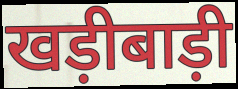
खड़ीबाड़ी